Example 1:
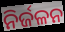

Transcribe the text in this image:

ନିର୍ଜଳନ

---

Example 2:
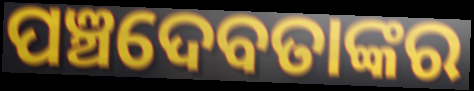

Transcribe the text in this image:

ପଞ୍ଚଦେବତାଙ୍କର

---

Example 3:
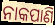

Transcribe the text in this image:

ନାକପାଣି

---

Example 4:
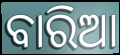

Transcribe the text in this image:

ବାରିଆ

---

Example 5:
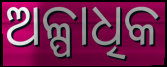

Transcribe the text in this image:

ଅଳ୍ପାଧିକ